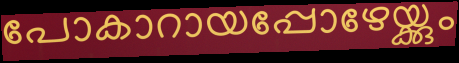
പോകാറായപ്പോഴേയ്ക്കും